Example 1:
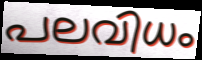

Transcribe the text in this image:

പലവിധം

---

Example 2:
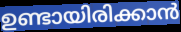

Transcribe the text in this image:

ഉണ്ടായിരിക്കാൻ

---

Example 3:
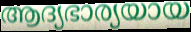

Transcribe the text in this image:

ആദ്യഭാര്യയായ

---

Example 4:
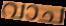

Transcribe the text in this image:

വാച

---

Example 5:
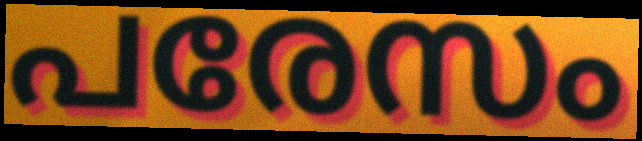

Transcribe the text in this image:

പരേസം